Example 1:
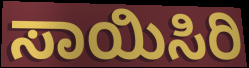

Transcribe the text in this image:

ಸಾಯಿಸಿರಿ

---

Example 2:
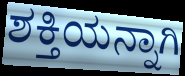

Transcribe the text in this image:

ಶಕ್ತಿಯನ್ನಾಗಿ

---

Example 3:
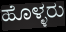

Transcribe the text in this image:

ಹೊಳ್ಳರು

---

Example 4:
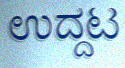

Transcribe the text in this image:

ಉದ್ದಟ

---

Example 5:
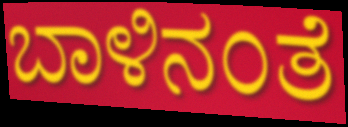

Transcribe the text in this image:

ಬಾಳಿನಂತೆ